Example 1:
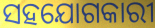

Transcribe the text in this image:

ସହଯୋଗକାରୀ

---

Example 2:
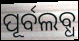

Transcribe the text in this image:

ପୂର୍ବଲବ୍ଧ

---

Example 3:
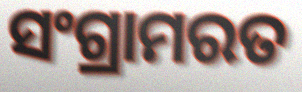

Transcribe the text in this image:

ସଂଗ୍ରାମରତ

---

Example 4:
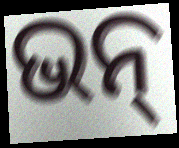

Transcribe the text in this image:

ଭନ୍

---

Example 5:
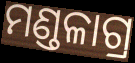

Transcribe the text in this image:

ମଣ୍ଡଳାଗ୍ର